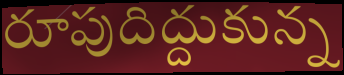
రూపుదిద్దుకున్న